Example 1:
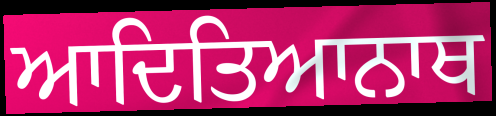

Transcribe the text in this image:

ਆਦਿਤਿਆਨਾਥ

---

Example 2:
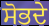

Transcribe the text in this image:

ਸੋਭਦੇ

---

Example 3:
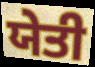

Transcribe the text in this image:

ਯੇਤੀ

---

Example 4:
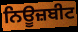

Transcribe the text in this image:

ਨਿਊਜ਼ਬੀਟ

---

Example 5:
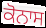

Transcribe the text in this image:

ਕੋਨਾਸ